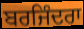
ਬਰਜਿੰਦਰਾ